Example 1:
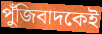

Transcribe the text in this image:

পুঁজিবাদকেই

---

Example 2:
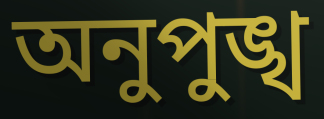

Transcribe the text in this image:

অনুপুঙ্খ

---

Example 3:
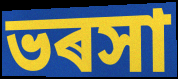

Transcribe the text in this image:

ভৰসা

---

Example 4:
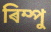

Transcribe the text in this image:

ৰিম্পু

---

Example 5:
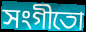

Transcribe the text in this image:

সংগীতো